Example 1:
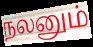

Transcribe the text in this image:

நலனும்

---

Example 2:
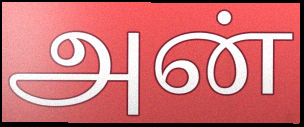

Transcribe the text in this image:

அன்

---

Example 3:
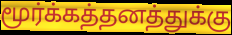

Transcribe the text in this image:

மூர்க்கத்தனத்துக்கு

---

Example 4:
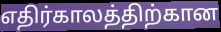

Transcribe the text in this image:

எதிர்காலத்திற்கான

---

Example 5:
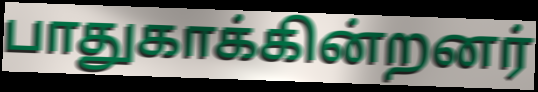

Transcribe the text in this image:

பாதுகாக்கின்றனர்